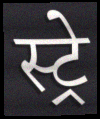
स्ट्रे